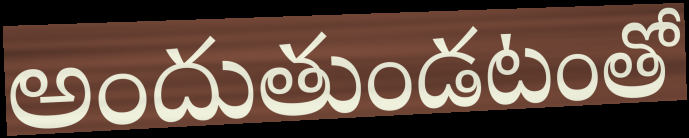
అందుతుండటంతో